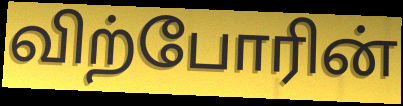
விற்போரின்